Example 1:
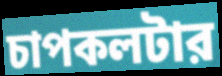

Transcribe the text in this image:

চাপকলটার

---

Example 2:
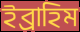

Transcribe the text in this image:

ইব্রাহিম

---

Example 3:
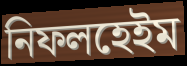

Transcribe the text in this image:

নিফলহেইম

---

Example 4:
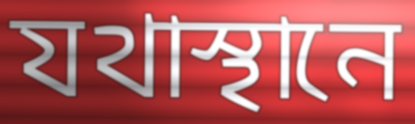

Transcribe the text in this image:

যথাস্থানে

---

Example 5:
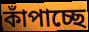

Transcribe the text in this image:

কাঁপাচ্ছে